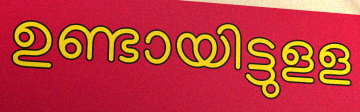
ഉണ്ടായിട്ടുളള